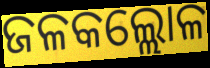
ଜଳକଲ୍ଲୋଳ